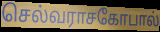
செல்வராசகோபால்